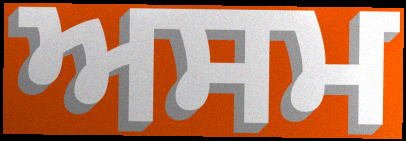
ਅਸਮ